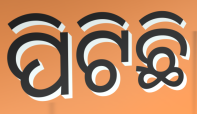
ପିଟିଛି